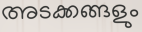
അടക്കങ്ങളും